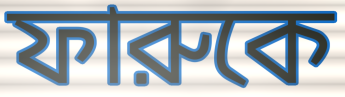
ফাৰুকে